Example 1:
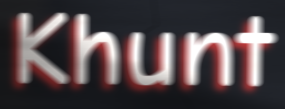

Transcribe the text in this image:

Khunt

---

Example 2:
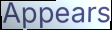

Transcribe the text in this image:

Appears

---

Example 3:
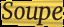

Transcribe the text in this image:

Soupe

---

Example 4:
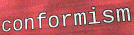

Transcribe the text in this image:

conformism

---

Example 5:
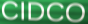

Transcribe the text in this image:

CIDCO